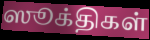
ஸூக்திகள்